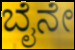
ಬೈನೇ